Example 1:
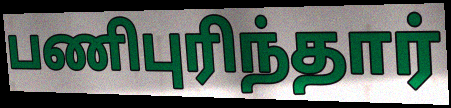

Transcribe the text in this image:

பணிபுரிந்தார்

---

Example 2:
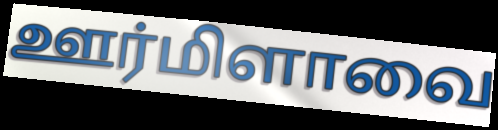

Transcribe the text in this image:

ஊர்மிளாவை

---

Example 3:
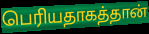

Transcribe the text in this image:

பெரியதாகத்தான்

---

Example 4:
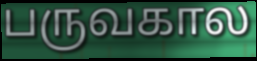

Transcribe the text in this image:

பருவகால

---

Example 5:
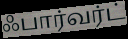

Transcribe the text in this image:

ஃபார்வர்ட்